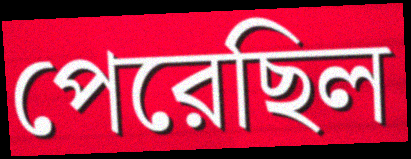
পেরেছিল